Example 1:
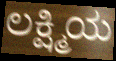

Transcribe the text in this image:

ಲಕ್ಷ್ಮಿಯ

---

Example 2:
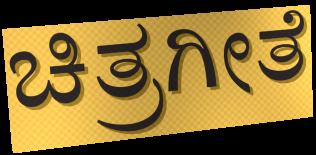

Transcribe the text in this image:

ಚಿತ್ರಗೀತೆ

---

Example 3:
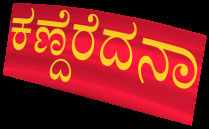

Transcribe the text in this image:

ಕಣ್ದೆರೆದನಾ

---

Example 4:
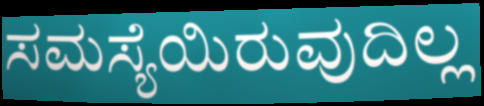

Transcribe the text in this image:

ಸಮಸ್ಯೆಯಿರುವುದಿಲ್ಲ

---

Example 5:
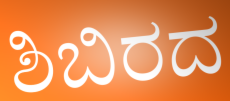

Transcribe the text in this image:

ಶಿಬಿರದ